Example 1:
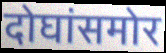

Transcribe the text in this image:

दोघांसमोर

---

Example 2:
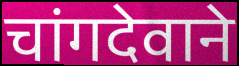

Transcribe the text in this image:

चांगदेवाने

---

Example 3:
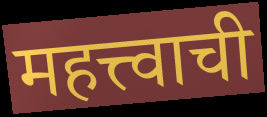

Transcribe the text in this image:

महत्त्वाची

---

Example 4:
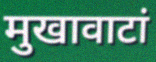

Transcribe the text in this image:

मुखावाटां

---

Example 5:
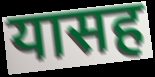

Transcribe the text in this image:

यासह